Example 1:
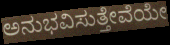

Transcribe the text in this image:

ಅನುಭವಿಸುತ್ತೇವೆಯೇ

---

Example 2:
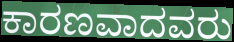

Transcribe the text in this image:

ಕಾರಣವಾದವರು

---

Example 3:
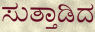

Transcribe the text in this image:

ಸುತ್ತಾಡಿದ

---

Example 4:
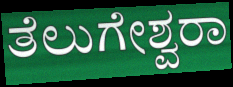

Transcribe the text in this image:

ತೆಲುಗೇಶ್ವರಾ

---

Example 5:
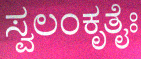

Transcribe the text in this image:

ಸ್ವಲಂಕೃತೈಃ